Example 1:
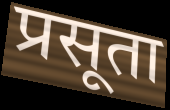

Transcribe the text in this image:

प्रसूता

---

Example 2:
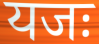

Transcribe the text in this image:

यजः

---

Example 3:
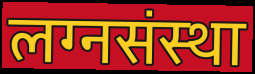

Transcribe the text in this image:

लग्नसंस्था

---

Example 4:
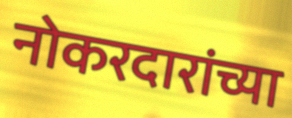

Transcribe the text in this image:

नोकरदारांच्या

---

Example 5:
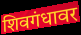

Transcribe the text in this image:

शिवगंधावर